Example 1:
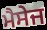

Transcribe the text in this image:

ਮੈਸੇਜ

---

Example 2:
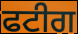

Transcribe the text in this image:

ਫਟੀਗ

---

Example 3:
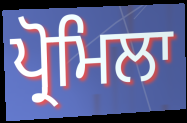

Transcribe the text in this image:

ਪ੍ਰੋਮਿਲਾ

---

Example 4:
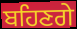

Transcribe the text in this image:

ਬਹਿਣਗੇ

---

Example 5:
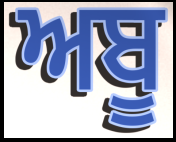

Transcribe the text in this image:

ਅਬੂ